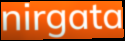
nirgata